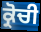
ਕ੍ਰੋਚੀ